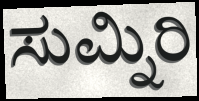
ಸುಮ್ನಿರಿ